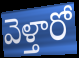
వెళ్తారో